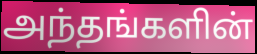
அந்தங்களின்